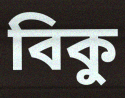
বিকু